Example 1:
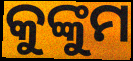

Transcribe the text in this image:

କୁଙ୍କୁମ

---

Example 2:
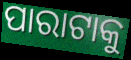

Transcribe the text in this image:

ପାରାଟାକୁ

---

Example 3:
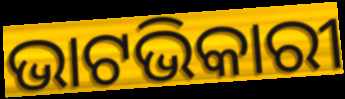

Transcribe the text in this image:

ଭାଟଭିକାରୀ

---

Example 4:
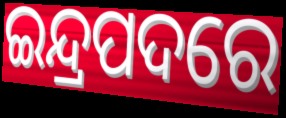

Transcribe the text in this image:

ଇନ୍ଦ୍ରପଦରେ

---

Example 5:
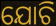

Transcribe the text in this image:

ଯୋଚି